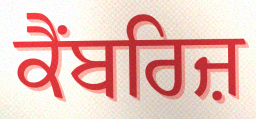
ਕੈਂਬਰਿਜ਼